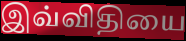
இவ்விதியை